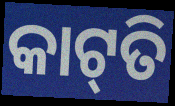
କାଟ୍‍ତି